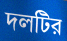
দলটির